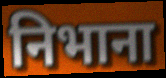
निभाना